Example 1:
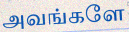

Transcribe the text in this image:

அவங்களே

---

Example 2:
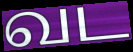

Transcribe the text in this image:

வட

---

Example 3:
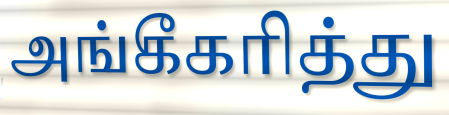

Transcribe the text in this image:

அங்கீகரித்து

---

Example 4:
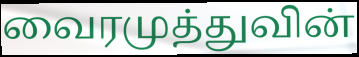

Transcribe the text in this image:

வைரமுத்துவின்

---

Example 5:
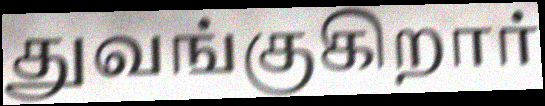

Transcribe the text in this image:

துவங்குகிறார்